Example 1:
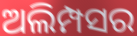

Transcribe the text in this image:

ଅଲିମ୍ପସର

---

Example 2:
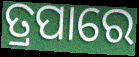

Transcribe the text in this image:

ତ୍ରପାରେ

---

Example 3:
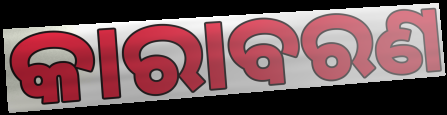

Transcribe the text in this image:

କାରାବରଣ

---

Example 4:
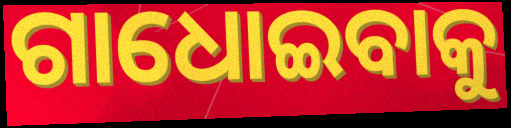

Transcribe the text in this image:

ଗାଧୋଇବାକୁ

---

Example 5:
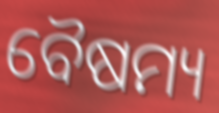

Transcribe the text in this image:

ବୈଷମ୍ୟ